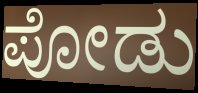
ಪೋಡು